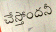
చేస్తోందనీ